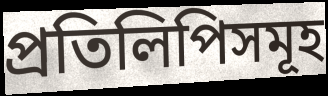
প্ৰতিলিপিসমূহ